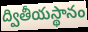
ద్వితీయస్థానం